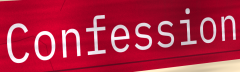
Confession